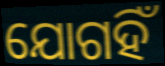
ଯୋଗହିଁ